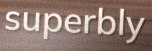
superbly